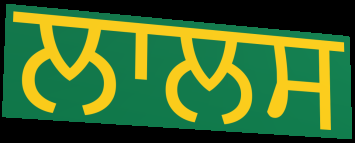
ਲਾਲਸ